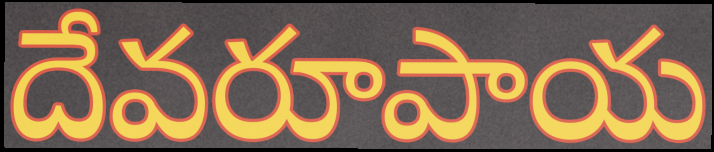
దేవరూపాయ